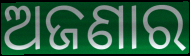
ଅଜଣାର